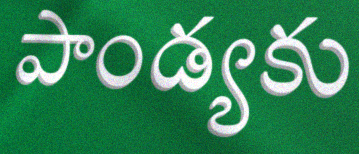
పాండ్యకు